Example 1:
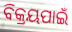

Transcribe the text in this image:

ବିକ୍ରୟପାଇଁ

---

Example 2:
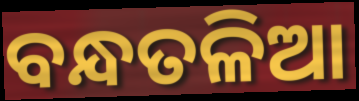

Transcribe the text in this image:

ବନ୍ଧତଳିଆ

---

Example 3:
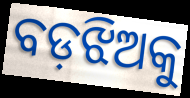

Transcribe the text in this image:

ବଡ଼ଝିଅକୁ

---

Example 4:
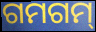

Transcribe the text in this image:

ଗମଗମ୍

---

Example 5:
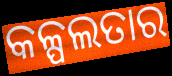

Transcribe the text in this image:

କଳ୍ପଲତାର